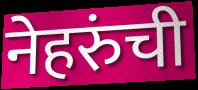
नेहरुंची